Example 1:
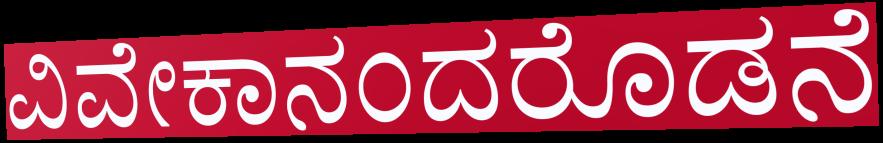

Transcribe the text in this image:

ವಿವೇಕಾನಂದರೊಡನೆ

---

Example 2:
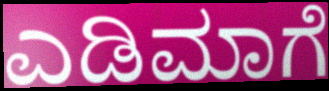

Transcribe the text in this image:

ಎಡಿಮಾಗೆ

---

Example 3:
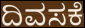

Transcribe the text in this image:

ದಿವಸಕೆ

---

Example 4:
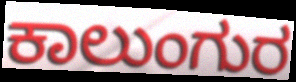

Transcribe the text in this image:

ಕಾಲುಂಗುರ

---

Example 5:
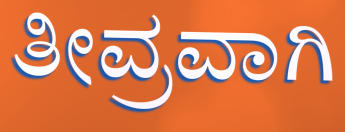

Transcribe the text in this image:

ತೀವ್ರವಾಗಿ